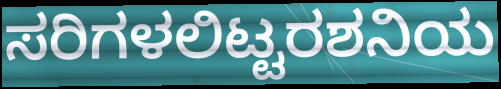
ಸರಿಗಳಲಿಟ್ಟರಶನಿಯ